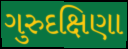
ગુરુદક્ષિણા